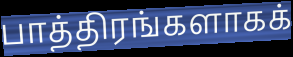
பாத்திரங்களாகக்